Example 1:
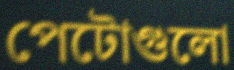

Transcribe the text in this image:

পেটোগুলো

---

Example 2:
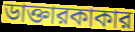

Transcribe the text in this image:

ডাক্তারকাকার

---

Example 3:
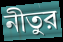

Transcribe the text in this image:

নীতুর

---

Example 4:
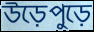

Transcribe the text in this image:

উড়েপুড়ে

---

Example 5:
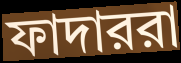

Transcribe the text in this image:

ফাদাররা